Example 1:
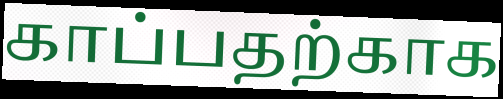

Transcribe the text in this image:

காப்பதற்காக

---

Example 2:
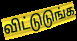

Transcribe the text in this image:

விட்டுடுங்க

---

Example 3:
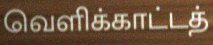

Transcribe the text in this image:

வெளிக்காட்டத்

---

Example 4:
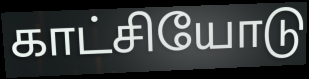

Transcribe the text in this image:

காட்சியோடு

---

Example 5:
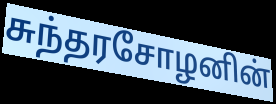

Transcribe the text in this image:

சுந்தரசோழனின்